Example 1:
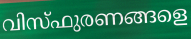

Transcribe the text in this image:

വിസ്ഫുരണങ്ങളെ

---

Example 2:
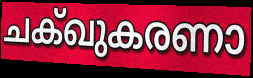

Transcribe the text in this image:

ചക്ഖുകരണാ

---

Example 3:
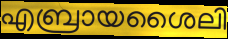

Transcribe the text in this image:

എബ്രായശൈലി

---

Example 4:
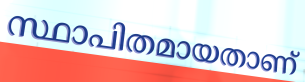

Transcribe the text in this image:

സ്ഥാപിതമായതാണ്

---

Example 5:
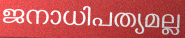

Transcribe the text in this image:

ജനാധിപത്യമല്ല